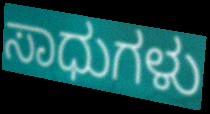
ಸಾಧುಗಳು